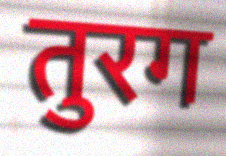
तुरग